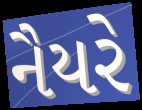
નૈયરે